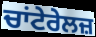
ਚਾਂਟੇਰੇਲਜ਼